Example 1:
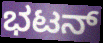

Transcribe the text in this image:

ಭಟನ್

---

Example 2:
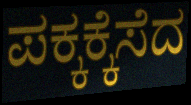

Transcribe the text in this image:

ಪಕ್ಕಕ್ಕೆಸೆದ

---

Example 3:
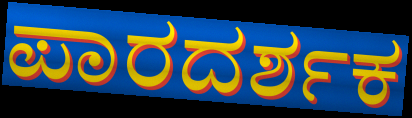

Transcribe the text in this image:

ಪಾರದರ್ಶಕ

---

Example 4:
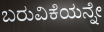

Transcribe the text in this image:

ಬರುವಿಕೆಯನ್ನೇ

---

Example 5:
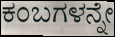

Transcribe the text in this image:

ಕಂಬಗಳನ್ನೇ